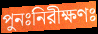
পুনঃনিরীক্ষণঃ